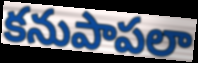
కనుపాపలా